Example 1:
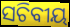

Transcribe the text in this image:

ସଚିବୀୟ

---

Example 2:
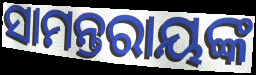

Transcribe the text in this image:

ସାମନ୍ତରାୟଙ୍କ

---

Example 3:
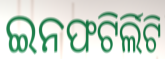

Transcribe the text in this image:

ଇନଫଟିର୍ଲିଟି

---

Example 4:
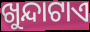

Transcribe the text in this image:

ଖୁନ୍ଦାଟାଏ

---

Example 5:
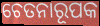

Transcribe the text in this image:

ଚେତନାରୂପକ